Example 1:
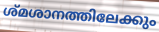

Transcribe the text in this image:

ശ്മശാനത്തിലേക്കും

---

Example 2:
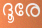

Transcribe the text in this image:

ദൂരേ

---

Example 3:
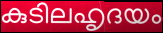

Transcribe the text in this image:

കുടിലഹൃദയം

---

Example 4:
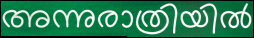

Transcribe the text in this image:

അന്നുരാത്രിയിൽ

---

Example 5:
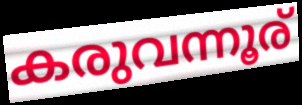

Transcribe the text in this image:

കരുവന്നൂര്